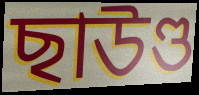
ছাউণ্ড